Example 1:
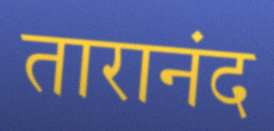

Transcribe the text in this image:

तारानंद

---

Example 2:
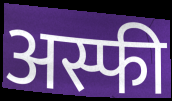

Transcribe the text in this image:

अस्फी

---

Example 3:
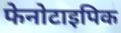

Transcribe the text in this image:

फेनोटाइपिक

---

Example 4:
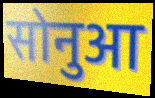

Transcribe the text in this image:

सोनुआ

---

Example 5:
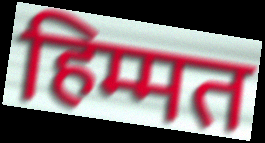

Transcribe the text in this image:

हिम्‍मत